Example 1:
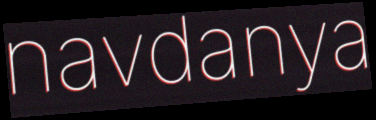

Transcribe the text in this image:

navdanya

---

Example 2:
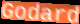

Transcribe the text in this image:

Godard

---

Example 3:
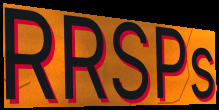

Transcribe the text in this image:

RRSPs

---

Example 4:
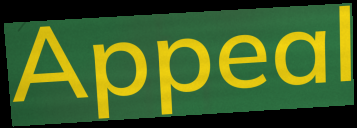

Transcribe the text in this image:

Appeal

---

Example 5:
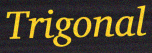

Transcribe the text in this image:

Trigonal